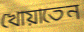
খোয়াতেন